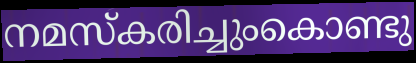
നമസ്കരിച്ചുംകൊണ്ടു